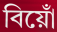
বিয়োঁ